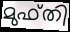
മുഫ്തി